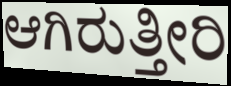
ಆಗಿರುತ್ತೀರಿ